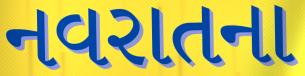
નવરાતના